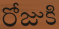
రోజుకి